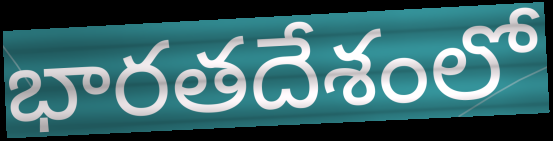
భారతదేశంలో